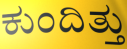
ಕುಂದಿತ್ತು